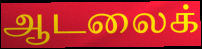
ஆடலைக்